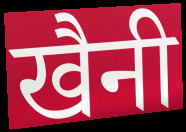
खैनी